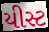
યીસ્ટ